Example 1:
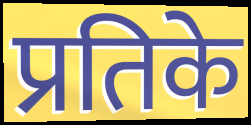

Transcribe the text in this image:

प्रतिके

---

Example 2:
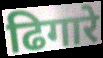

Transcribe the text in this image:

ढिगारे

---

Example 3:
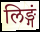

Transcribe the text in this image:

लिङ्गं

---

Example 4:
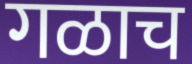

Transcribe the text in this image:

गळाच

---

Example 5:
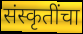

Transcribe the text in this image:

संस्कृतींचा